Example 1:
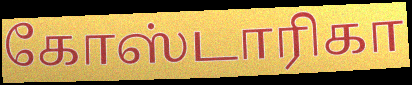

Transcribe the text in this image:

கோஸ்டாரிகா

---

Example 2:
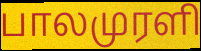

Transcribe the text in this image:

பாலமுரளி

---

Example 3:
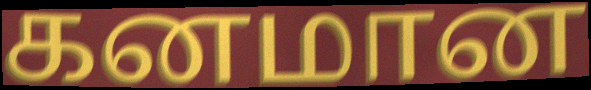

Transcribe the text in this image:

கனமான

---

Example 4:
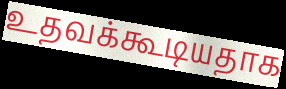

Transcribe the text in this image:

உதவக்கூடியதாக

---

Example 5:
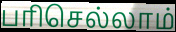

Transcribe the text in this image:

பரிசெல்லாம்